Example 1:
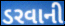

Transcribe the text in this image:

ડરવાની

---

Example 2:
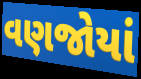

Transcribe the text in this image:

વણજોયાં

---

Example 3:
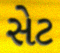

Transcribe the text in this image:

સેટ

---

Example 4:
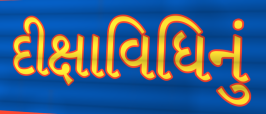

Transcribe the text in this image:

દીક્ષાવિધિનું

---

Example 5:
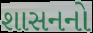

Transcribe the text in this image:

શાસનનો